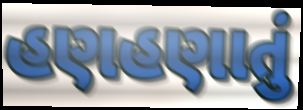
હણહણાતું